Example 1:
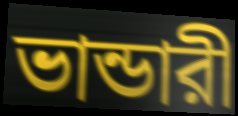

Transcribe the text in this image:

ভান্ডারী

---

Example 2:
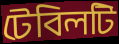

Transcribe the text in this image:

টেবিলটি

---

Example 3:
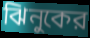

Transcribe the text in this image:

ঝিনুকের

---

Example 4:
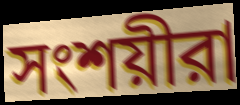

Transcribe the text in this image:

সংশয়ীরা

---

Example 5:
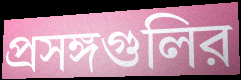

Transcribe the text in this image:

প্রসঙ্গগুলির